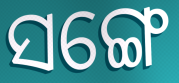
ସଙ୍ଗେ